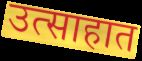
उत्साहात